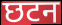
छटन